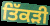
ਤਿੱਕੜੀ